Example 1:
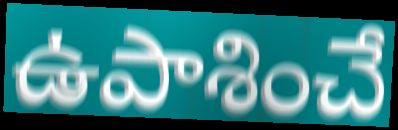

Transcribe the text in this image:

ఉపాశించే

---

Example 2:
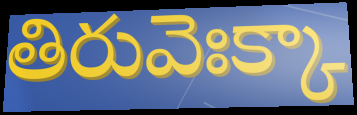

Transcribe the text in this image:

తిరువెఃక్కా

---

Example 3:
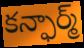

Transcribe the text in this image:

కన్ఫార్మ్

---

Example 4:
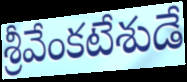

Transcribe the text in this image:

శ్రీవేంకటేశుడే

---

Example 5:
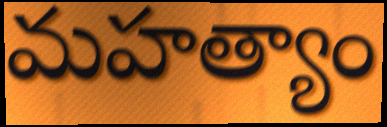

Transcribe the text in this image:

మహత్యాం